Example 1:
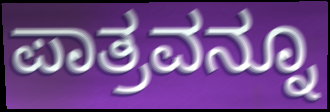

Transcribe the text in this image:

ಪಾತ್ರವನ್ನೂ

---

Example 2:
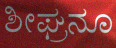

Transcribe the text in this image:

ಶೀಘ್ರನೂ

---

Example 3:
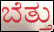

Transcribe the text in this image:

ಬೆತ್ತು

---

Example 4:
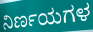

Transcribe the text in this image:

ನಿರ್ಣಯಗಳ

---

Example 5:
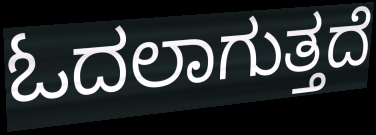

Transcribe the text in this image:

ಓದಲಾಗುತ್ತದೆ